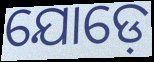
ଯୋଡ଼େ